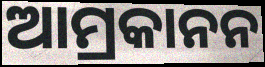
ଆମ୍ରକାନନ